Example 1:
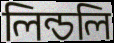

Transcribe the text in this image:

লিন্ডলি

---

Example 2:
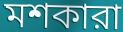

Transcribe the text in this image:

মশকারা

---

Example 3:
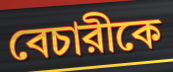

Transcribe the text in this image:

বেচারীকে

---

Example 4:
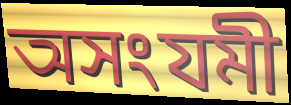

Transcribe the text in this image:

অসংযমী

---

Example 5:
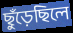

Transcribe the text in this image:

ছুঁড়েছিলে